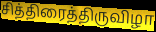
சித்திரைத்திருவிழா